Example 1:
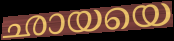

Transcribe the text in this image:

ഛായയെ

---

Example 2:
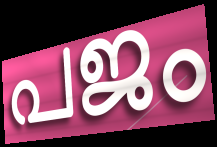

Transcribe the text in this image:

പജം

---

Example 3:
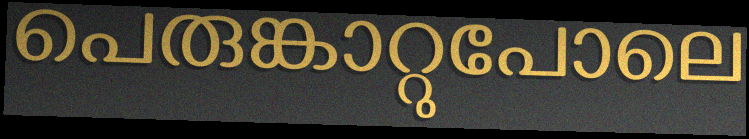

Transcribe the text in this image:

പെരുങ്കാറ്റുപോലെ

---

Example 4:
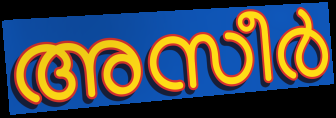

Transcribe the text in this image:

അസീർ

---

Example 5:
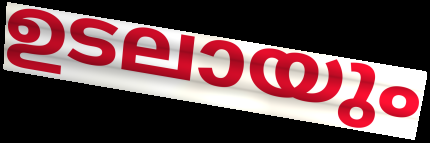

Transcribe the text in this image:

ഉടലായും